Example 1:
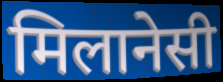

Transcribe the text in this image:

मिलानेसी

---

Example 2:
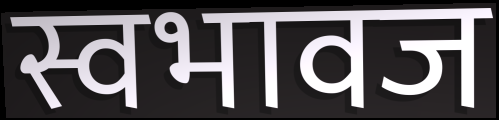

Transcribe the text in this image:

स्वभावज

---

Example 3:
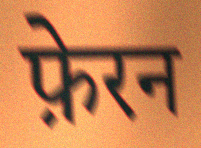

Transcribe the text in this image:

फ़ेरन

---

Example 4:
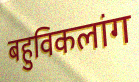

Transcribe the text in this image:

बहुविकलांग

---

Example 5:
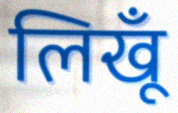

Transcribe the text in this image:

लिखूँ